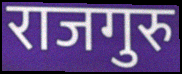
राजगुरु